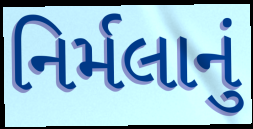
નિર્મલાનું